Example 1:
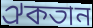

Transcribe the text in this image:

ঐকতান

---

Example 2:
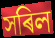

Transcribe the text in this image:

সৰিল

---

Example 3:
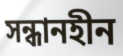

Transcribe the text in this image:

সন্ধানহীন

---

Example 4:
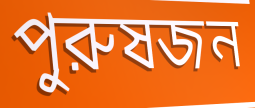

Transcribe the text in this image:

পুৰুষজন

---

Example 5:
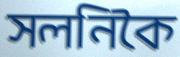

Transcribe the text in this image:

সলনিকৈ